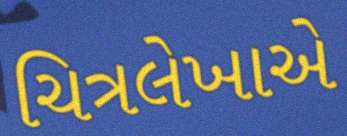
ચિત્રલેખાએ